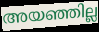
അയഞ്ഞില്ല